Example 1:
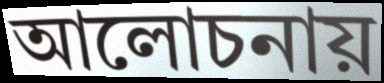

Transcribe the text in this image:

আলোচনায়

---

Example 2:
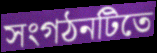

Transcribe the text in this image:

সংগঠনটিতে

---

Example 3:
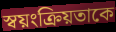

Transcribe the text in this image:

স্বয়ংক্রিয়তাকে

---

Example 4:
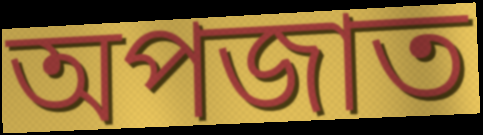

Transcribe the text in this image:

অপজাত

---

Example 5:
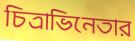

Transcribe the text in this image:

চিত্রাভিনেতার